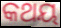
କଥୟ